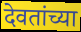
देवतांच्या